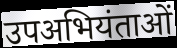
उपअभियंताओं